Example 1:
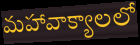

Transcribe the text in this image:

మహావాక్యాలలో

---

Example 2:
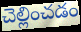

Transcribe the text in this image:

చెల్లించడం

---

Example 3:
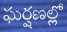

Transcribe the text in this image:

ఘర్షణల్లో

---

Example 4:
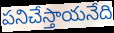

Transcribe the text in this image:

పనిచేస్తాయనేది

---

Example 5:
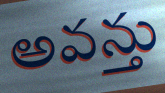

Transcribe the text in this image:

అవన్తు